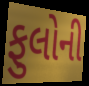
ફુલોની